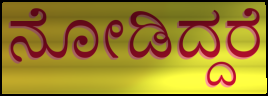
ನೋಡಿದ್ದರೆ